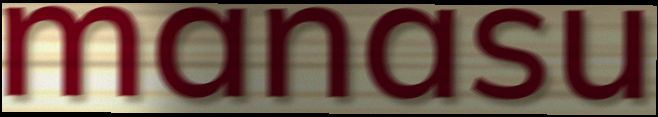
manasu